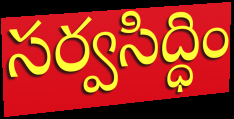
సర్వసిద్ధిం